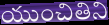
యుంచితిని